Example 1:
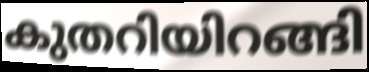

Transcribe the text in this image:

കുതറിയിറങ്ങി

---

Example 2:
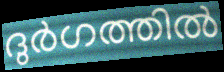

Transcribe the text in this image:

ദുർഗത്തിൽ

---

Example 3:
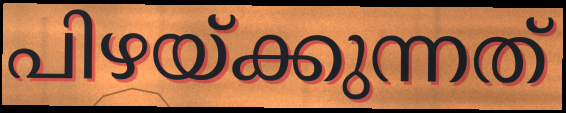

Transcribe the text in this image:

പിഴയ്ക്കുന്നത്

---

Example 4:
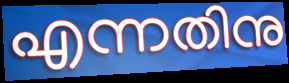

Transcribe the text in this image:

എന്നതിനു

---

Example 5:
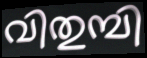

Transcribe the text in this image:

വിതുമ്പി